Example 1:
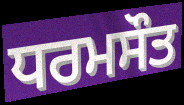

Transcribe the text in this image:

ਧਰਮਸੌਤ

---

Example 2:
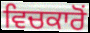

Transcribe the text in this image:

ਵਿਚਕਾਰੋਂ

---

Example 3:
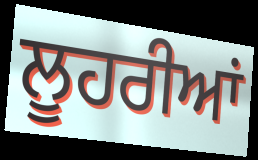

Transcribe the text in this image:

ਲੂਹਰੀਆਂ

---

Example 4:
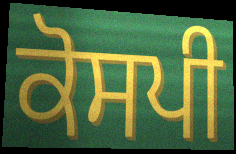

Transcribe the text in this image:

ਕੋਸਪੀ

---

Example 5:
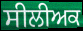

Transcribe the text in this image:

ਸੀਲੀਅਕ